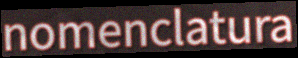
nomenclatura